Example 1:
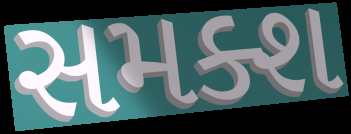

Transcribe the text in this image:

સમક્શ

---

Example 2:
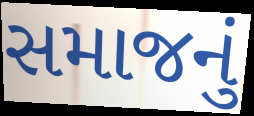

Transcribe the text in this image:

સમાજનું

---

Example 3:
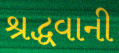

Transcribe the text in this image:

શ્રદ્ધવાની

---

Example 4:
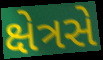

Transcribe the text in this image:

ક્ષેત્રસે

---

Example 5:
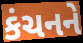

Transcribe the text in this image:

કંચનને